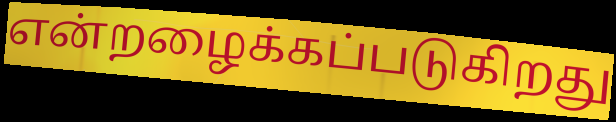
என்றழைக்கப்படுகிறது